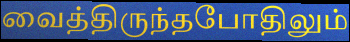
வைத்திருந்தபோதிலும்